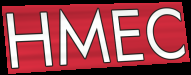
HMEC